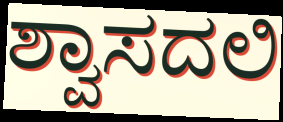
ಶ್ವಾಸದಲಿ